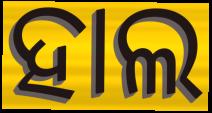
ହାଲ